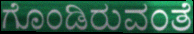
ಗೊಂಡಿರುವಂತೆ